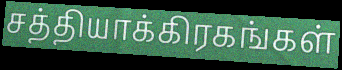
சத்தியாக்கிரகங்கள்